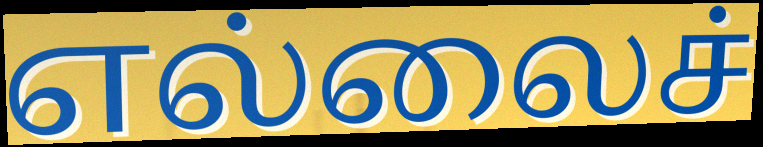
எல்லைச்